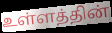
உள்ளத்தின்